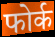
फोर्क